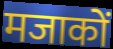
मजाकों